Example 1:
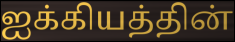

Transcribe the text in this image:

ஐக்கியத்தின்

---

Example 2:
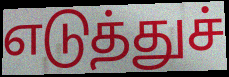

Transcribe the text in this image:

எடுத்துச்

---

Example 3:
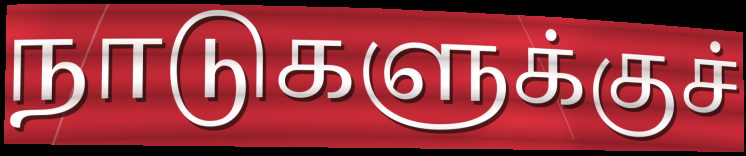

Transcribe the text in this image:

நாடுகளுக்குச்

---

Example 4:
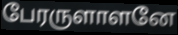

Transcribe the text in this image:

பேரருளாளனே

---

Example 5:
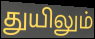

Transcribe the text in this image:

துயிலும்